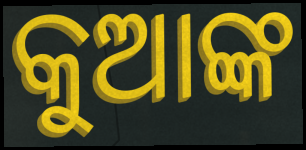
କୁଆଙ୍କ